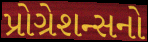
પ્રોગ્રેશન્સનો